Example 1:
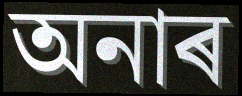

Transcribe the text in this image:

অনাৰ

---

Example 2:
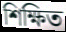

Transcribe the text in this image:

শিক্ষিত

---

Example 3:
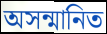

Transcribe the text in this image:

অসন্মানিত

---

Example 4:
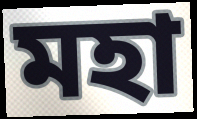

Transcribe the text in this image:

মহা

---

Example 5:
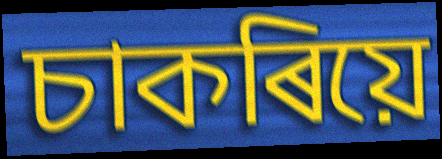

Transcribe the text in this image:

চাকৰিয়ে